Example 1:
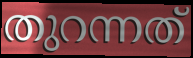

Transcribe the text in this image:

തുറന്നത്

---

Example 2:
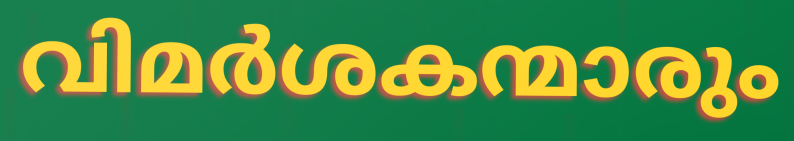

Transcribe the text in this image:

വിമർശകന്മാരും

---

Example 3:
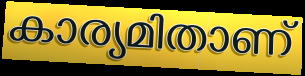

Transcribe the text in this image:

കാര്യമിതാണ്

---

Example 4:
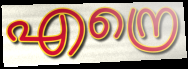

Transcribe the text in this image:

എന്രെ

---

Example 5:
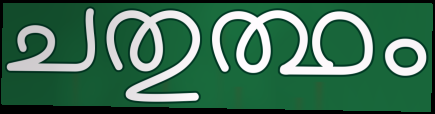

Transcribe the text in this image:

ചതുത്ഥം